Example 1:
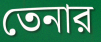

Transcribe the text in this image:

তেনার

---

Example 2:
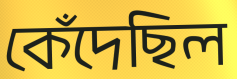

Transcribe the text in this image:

কেঁদেছিল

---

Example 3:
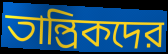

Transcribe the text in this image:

তান্ত্রিকদের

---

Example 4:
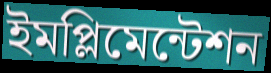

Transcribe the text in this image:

ইমপ্লিমেন্টেশন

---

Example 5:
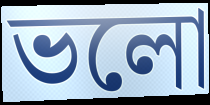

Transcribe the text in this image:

ভলো